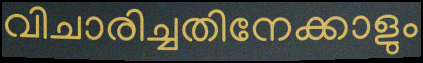
വിചാരിച്ചതിനേക്കാളും